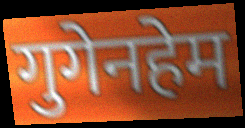
गुगेनहेम